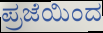
ಪ್ರಜೆಯಿಂದ